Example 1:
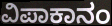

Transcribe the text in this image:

ವಿಪಾಕಾನಂ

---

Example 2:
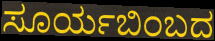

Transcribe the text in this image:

ಸೂರ್ಯಬಿಂಬದ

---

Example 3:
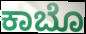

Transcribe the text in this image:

ಕಾಬೊ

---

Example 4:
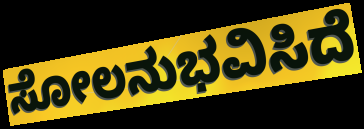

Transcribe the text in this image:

ಸೋಲನುಭವಿಸಿದೆ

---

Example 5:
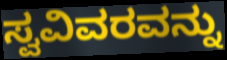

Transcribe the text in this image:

ಸ್ವವಿವರವನ್ನು